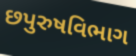
છપુરુષવિભાગ